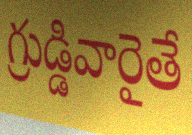
గ్రుడ్డివారైతే